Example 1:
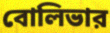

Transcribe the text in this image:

বোলিভার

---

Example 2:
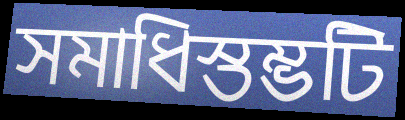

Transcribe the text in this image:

সমাধিস্তম্ভটি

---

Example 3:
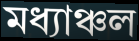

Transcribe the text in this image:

মধ্যাঞ্চল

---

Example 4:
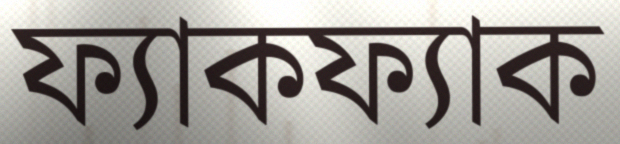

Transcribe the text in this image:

ফ্যাকফ্যাক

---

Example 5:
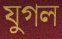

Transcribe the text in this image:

যুগল